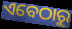
ଏବେଠାରୁ